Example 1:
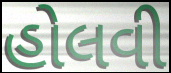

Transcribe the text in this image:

હોલવી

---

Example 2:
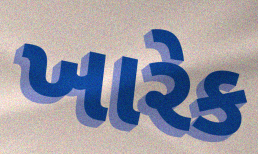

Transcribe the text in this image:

ખારેક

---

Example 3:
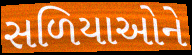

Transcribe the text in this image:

સળિયાઓને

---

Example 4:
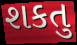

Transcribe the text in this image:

શકતુ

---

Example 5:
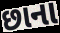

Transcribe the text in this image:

છાના